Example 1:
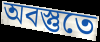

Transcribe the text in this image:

অবস্তুতে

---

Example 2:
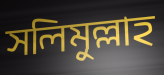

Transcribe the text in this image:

সলিমুল্লাহ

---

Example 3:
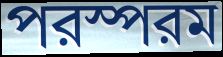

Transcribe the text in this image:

পরস্পরম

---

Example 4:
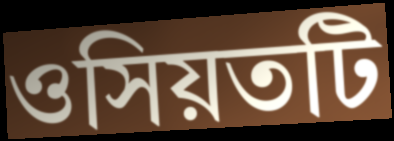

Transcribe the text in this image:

ওসিয়তটি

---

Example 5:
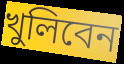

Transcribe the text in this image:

খুলিবেন